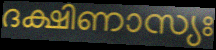
ദക്ഷിണാസ്യഃ